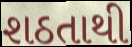
શઠતાથી